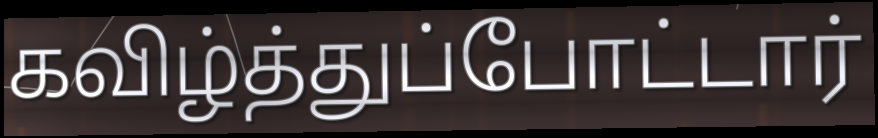
கவிழ்த்துப்போட்டார்